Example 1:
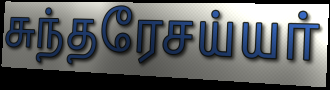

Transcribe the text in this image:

சுந்தரேசய்யர்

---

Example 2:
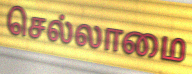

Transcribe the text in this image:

செல்லாமை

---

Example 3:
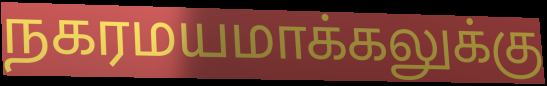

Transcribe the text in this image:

நகரமயமாக்கலுக்கு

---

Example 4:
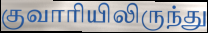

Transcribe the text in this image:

குவாரியிலிருந்து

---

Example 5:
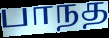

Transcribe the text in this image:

பாநத